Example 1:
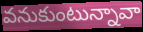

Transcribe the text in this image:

వనుకుంటున్నావా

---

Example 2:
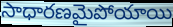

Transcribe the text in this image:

సాధారణమైపోయాయి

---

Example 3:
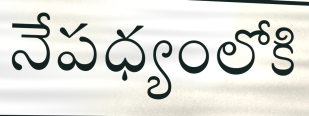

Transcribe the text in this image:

నేపధ్యంలోకి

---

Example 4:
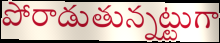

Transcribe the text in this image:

పోరాడుతున్నట్టుగా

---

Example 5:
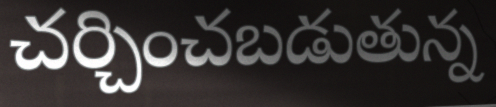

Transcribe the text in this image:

చర్చించబడుతున్న